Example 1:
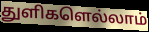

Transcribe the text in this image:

துளிகளெல்லாம்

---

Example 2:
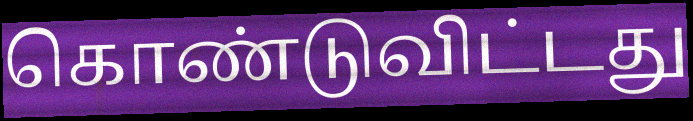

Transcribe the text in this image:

கொண்டுவிட்டது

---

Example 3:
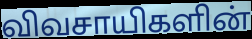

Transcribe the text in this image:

விவசாயிகளின்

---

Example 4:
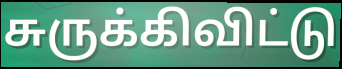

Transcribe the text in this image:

சுருக்கிவிட்டு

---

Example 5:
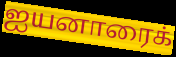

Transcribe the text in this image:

ஐயனாரைக்